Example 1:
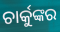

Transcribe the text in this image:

ଚାର୍କୁଙ୍କର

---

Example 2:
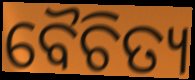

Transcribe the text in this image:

ବୈଚିତ୍ୟ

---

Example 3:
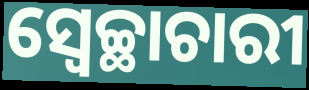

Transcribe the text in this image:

ସ୍ୱେଚ୍ଛାଚାରୀ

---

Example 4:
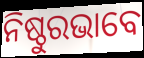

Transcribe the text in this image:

ନିଷ୍ଠୁରଭାବେ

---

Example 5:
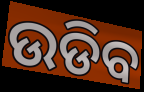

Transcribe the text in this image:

ଉଡିବ